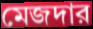
মেজদার